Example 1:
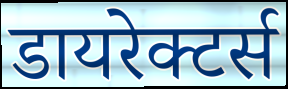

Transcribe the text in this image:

डायरेक्टर्स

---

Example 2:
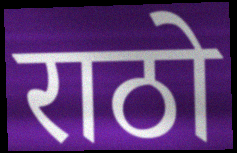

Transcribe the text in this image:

राठो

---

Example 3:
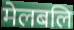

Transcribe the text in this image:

मेलबलि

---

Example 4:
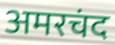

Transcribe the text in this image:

अमरचंद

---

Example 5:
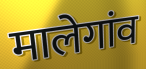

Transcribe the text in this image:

मालेगांव